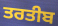
ਤਰਤੀਬ